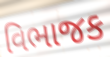
વિભાજક